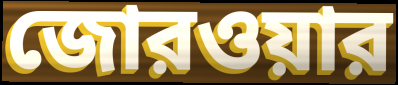
জোরওয়ার